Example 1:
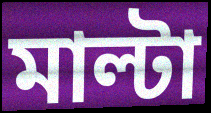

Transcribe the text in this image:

মাল্টা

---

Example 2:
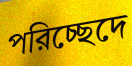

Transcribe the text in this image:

পরিচ্ছেদে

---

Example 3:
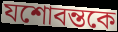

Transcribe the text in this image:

যশোবন্তকে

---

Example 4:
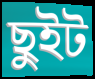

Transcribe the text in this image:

ছুইট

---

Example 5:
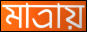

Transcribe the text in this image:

মাত্রায়